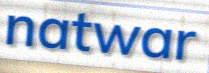
natwar